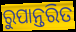
ରୁପାନ୍ତରିତ